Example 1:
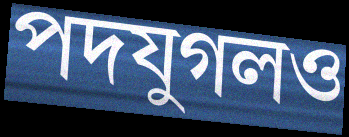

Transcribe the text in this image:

পদযুগলও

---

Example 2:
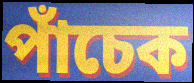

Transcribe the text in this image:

পাঁচেক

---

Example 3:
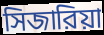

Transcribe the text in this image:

সিজারিয়া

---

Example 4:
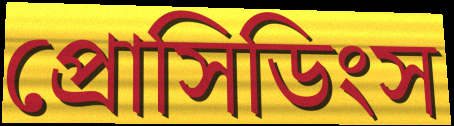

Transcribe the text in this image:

প্রোসিডিংস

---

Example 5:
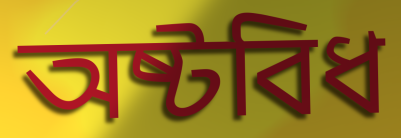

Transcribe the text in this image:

অষ্টবিধ